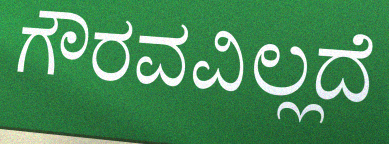
ಗೌರವವಿಲ್ಲದೆ